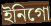
ইনিগো